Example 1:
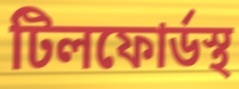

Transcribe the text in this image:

টিলফোর্ডস্থ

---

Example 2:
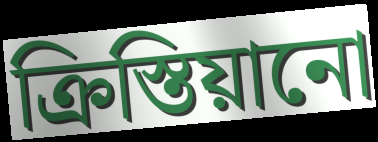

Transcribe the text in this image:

ক্রিস্তিয়ানো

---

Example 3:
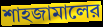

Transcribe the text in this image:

শাহজামালের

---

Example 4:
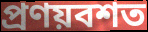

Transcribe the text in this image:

প্রণয়বশত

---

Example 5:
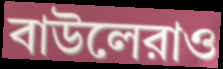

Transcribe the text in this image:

বাউলেরাও